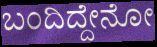
ಬಂದಿದ್ದೇನೋ